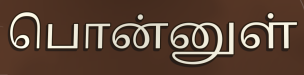
பொன்னுள்